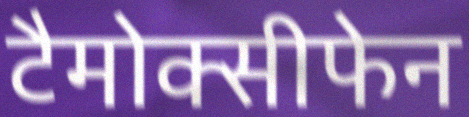
टैमोक्सीफेन